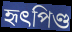
হৃৎপিণ্ড